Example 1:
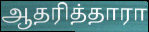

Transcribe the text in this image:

ஆதரித்தாரா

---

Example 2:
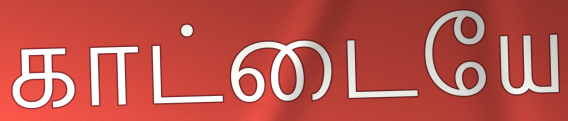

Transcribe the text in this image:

காட்டையே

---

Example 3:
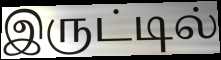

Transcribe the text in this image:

இருட்டில்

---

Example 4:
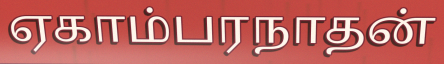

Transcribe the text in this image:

ஏகாம்பரநாதன்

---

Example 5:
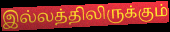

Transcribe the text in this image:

இல்லத்திலிருக்கும்